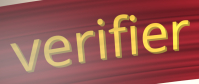
verifier